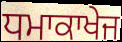
ਧਮਾਕਾਖੇਜ